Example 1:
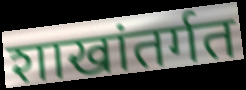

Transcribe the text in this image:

शाखांतर्गत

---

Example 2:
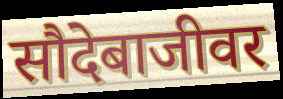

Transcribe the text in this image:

सौदेबाजीवर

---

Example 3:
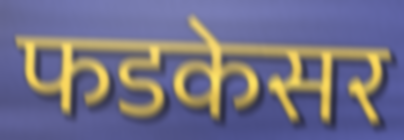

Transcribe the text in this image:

फडकेसर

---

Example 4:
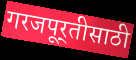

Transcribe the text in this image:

गरजपूर्तीसाठी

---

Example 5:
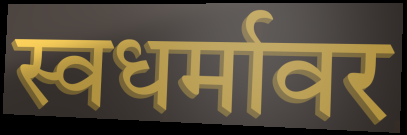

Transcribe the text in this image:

स्वधर्मावर